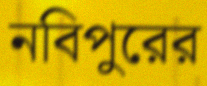
নবিপুরের